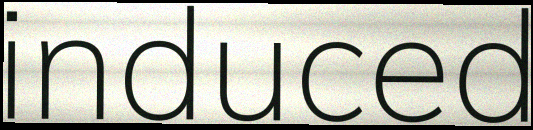
induced